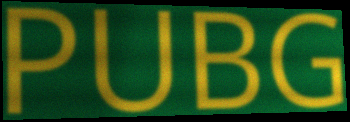
PUBG